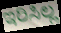
ಇರಿಸಿಲ್ಲ